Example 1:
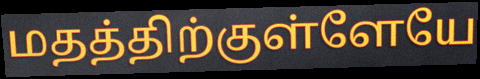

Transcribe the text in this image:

மதத்திற்குள்ளேயே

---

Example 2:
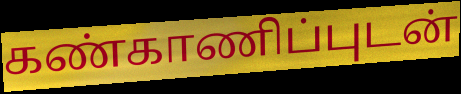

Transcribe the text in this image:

கண்காணிப்புடன்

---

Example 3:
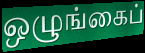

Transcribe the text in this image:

ஒழுங்கைப்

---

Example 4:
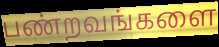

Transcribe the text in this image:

பண்றவங்களை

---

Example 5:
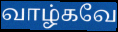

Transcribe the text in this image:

வாழ்கவே